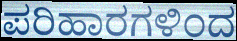
ಪರಿಹಾರಗಳಿಂದ